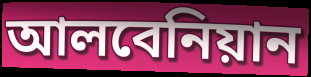
আলবেনিয়ান